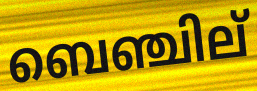
ബെഞ്ചില്